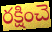
రక్షించె